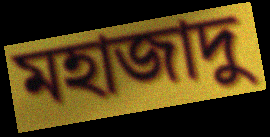
মহাজাদু